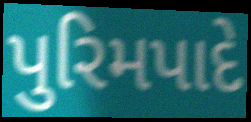
પુરિમપાદે